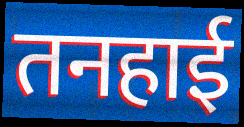
तनहाई